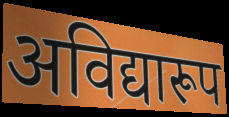
अविद्यारूप